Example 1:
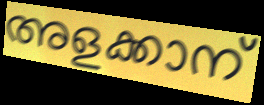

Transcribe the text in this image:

അളക്കാന്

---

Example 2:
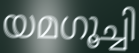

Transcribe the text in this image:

യമഗൂച്ചി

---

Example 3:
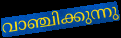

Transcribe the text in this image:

വാഞ്ചിക്കുന്നു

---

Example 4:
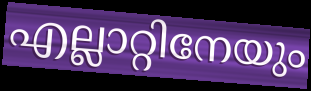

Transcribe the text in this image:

എല്ലാറ്റിനേയും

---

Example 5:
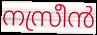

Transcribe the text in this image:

നസ്രീൻ